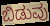
ಬಿಡುವು